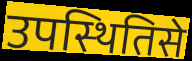
उपस्थितिसे